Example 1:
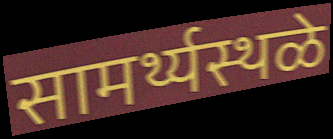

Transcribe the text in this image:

सामर्थ्यस्थळे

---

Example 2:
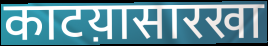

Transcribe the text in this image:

काटय़ासारखा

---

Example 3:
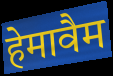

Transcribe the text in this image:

हेमावैम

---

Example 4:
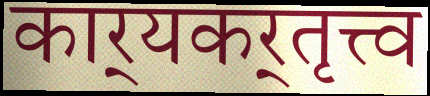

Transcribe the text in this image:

कार्यकर्तृत्त्व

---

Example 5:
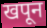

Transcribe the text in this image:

खपून